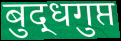
बुद्धगुप्त